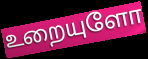
உறையுளோ